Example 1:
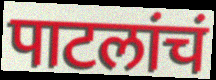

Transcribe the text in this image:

पाटलांचं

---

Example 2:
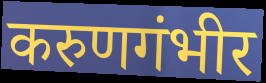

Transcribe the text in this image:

करुणगंभीर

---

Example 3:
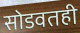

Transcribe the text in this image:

सोडवतही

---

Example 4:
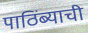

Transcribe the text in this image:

पाठिंब्याची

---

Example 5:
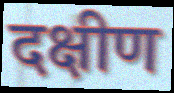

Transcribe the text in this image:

दक्षीण